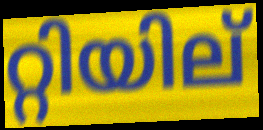
റ്റിയില്